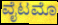
ವೈಟಮೊ